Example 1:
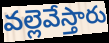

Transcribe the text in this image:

వల్లెవేస్తారు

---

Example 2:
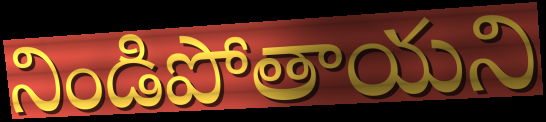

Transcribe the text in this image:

నిండిపోతాయని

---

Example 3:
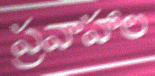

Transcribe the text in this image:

ప్రవాహాల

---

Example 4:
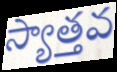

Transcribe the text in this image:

స్యాత్తవ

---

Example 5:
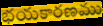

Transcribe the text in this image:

భయకారణము